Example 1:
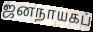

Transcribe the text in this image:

ஜனநாயகப்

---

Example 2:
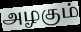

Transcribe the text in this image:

அழகும்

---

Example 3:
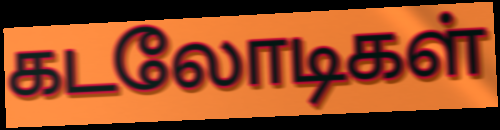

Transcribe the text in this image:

கடலோடிகள்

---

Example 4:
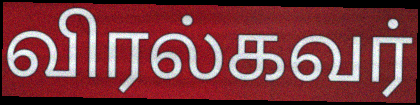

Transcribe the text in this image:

விரல்கவர்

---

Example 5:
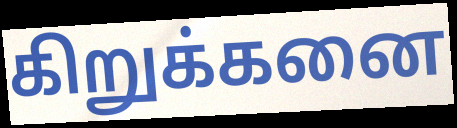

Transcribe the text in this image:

கிறுக்கனை